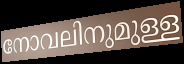
നോവലിനുമുള്ള